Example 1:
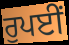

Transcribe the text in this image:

ਰੁਪਈਂ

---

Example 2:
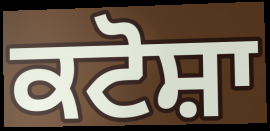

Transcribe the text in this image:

ਕਟੋਸ਼ਾ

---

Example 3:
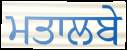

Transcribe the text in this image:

ਮਤਾਲਬੇ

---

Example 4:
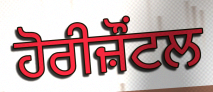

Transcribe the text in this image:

ਹੋਰੀਜ਼ੌਂਟਲ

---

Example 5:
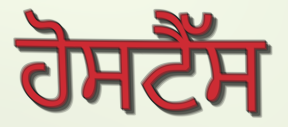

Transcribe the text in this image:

ਹੋਸਟੈੱਸ